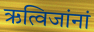
ऋत्विजांनां